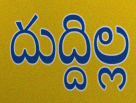
దుద్దిల్ల